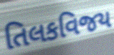
તિલકવિજય